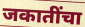
जकातींचा